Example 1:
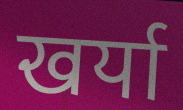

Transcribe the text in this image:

खर्या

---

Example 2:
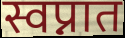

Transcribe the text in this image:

स्वप्नात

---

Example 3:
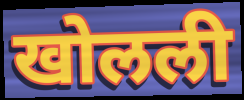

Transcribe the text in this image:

खोलली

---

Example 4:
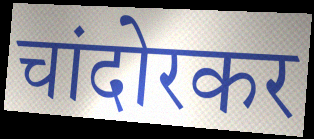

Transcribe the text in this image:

चांदोरकर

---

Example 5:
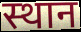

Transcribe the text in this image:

स्थान